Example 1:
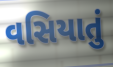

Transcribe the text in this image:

વસિયાતું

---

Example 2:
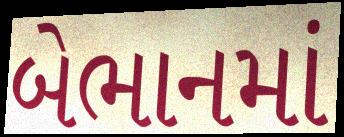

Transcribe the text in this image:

બેભાનમાં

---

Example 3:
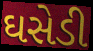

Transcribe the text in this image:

ઘસેડી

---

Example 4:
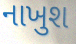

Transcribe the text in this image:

નાખુશ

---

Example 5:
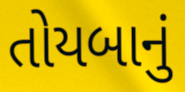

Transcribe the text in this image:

તોયબાનું